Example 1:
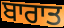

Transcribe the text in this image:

ਬਾਰਾਤ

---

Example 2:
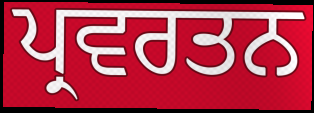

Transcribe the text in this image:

ਪ੍ਰਵਰਤਨ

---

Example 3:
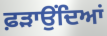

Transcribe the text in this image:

ਫ਼ੜਾਉਂਦਿਆਂ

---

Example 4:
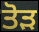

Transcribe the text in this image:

ਤੋਡ਼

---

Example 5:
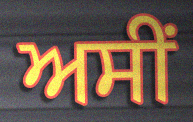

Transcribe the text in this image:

ਅਸੀੰ